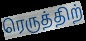
ரெருத்திற்